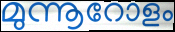
മുന്നൂറോളം